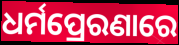
ଧର୍ମପ୍ରେରଣାରେ